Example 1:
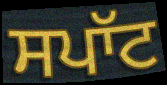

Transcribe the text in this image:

ਸਪਾੱਟ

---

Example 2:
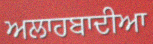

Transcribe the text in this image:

ਅਲਾਹਬਾਦੀਆ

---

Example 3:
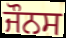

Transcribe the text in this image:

ਜੌਨਸ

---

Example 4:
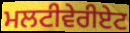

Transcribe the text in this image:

ਮਲਟੀਵੇਰੀਏਟ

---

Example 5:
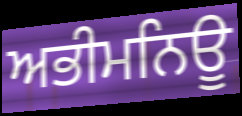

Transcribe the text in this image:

ਅਭੀਮਨਿਊ